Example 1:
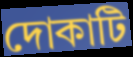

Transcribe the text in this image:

দোকাটি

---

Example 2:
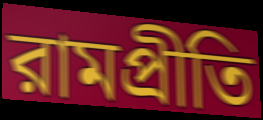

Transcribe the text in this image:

রামপ্রীতি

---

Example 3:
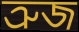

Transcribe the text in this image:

ত্রুজ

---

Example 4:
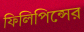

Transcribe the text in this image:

ফিলিপিন্সের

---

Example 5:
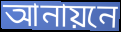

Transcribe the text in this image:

আনায়নে